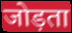
जोड़ता